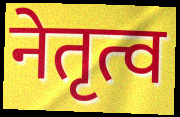
नेतृत्‍व